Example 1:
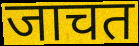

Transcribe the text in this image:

जाचत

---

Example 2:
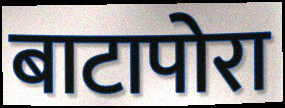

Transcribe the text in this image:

बाटापोरा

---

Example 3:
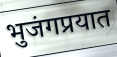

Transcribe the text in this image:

भुजंगप्रयात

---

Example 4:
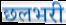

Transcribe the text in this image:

छलभरी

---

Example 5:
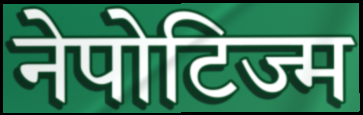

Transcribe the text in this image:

नेपोटिज्‍म